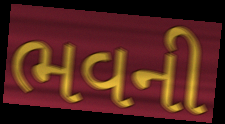
ભવની